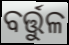
ବର୍ତ୍ତୁଳ